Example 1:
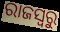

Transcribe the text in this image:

ରାଜସ୍ୱରୁ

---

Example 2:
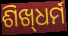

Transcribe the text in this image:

ଶିଖ୍‌ଧର୍ମ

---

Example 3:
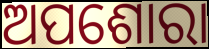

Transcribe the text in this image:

ଅପଶୋରା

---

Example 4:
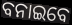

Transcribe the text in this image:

ବନାଇବେ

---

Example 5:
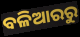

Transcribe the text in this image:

ବଳିଆରରୁ